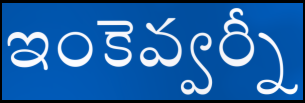
ఇంకెవ్వర్నీ